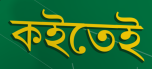
কইতেই